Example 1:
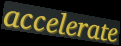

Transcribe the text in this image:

accelerate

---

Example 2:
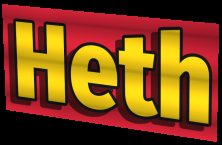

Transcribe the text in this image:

Heth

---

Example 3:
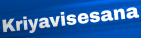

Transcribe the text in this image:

Kriyavisesana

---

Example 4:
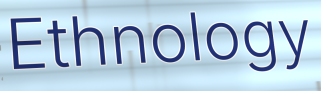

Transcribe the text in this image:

Ethnology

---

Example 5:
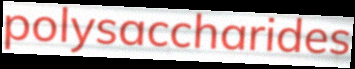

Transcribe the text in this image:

polysaccharides